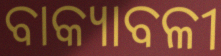
ବାକ୍ୟାବଳୀ